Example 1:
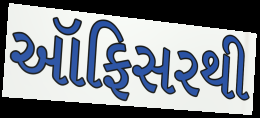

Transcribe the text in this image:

ઑફિસરથી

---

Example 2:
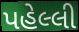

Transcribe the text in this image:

પહેલ્લી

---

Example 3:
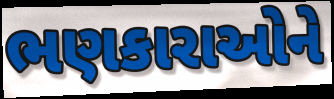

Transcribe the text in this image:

ભણકારાઓને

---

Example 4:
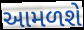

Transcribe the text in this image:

આમળશે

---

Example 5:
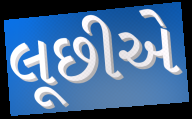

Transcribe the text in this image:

લૂછીએ